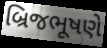
બ્રિજભૂષણે